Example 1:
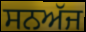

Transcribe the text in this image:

ਸਨਅੱਜ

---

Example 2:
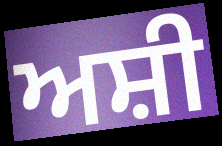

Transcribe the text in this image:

ਅਸ਼ੀ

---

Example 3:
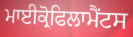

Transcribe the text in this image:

ਮਾਈਕ੍ਰੋਫਿਲਾਮੈਂਟਸ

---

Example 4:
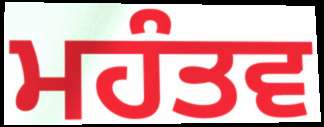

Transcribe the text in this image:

ਮਹੰਤਵ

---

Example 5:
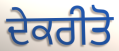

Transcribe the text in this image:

ਦੇਕਰੀਤੋ